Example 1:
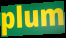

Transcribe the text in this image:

plum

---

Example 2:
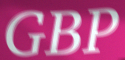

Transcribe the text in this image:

GBP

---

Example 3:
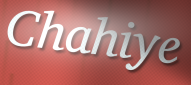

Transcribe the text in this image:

Chahiye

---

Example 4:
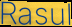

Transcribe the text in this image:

Rasul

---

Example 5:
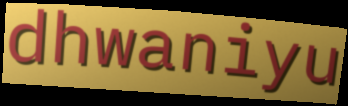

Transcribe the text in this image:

dhwaniyu